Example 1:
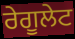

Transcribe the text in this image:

ਰੇਗੂਲੇਟ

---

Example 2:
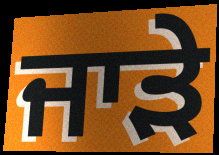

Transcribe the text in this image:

ਜਾੜੇ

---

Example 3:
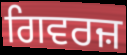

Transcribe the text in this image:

ਗਿਵਰਜ਼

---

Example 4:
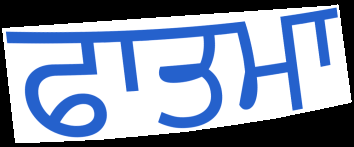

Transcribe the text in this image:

ਫਾਤਮਾ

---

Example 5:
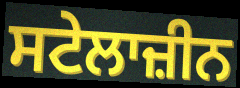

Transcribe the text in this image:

ਸਟੇਲਾਜ਼ੀਨ